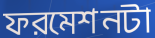
ফরমেশনটা